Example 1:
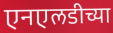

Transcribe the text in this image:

एनएलडीच्या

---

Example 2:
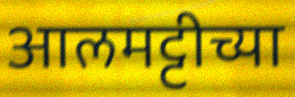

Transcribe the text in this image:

आलमट्टीच्या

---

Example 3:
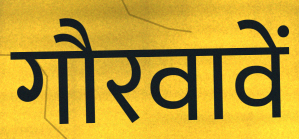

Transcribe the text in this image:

गौरवावें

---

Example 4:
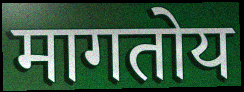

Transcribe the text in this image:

मागतोय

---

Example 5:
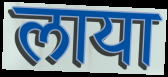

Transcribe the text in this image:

लाया